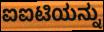
ಐಐಟಿಯನ್ನು